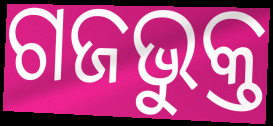
ଗଜଭୁକ୍ତ